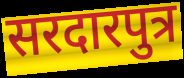
सरदारपुत्र